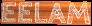
EELAM